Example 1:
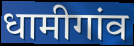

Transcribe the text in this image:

धामीगांव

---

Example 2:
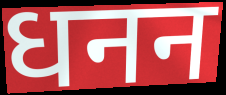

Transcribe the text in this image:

धनन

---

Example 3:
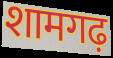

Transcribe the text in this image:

शामगढ़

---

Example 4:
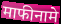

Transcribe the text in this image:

माफीनामे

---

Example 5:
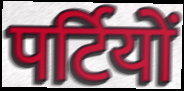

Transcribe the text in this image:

पर्टियों